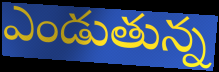
ఎండుతున్న